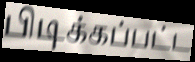
பிடிக்கப்பட்ட